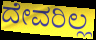
ದೇವರಿಲ್ಲ